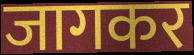
जागकर